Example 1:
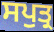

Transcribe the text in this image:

ਸਪੁਤ੍ਰ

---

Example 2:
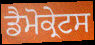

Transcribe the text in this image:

ਡੈਮੋਕ੍ਰੇਟਸ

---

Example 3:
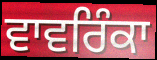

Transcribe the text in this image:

ਵਾਵਰਿੰਕਾ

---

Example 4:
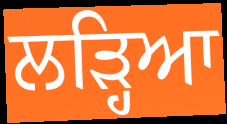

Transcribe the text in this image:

ਲੜ੍ਹਿਆ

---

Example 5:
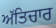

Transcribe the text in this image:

ਅੱਤਿਚਾਰ